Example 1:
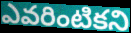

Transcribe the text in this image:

ఎవరింటికని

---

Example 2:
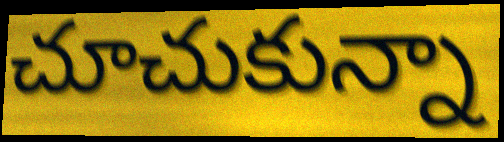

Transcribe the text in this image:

చూచుకున్నా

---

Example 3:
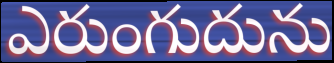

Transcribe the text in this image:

ఎరుంగుదును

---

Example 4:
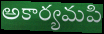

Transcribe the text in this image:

అకార్యమపి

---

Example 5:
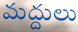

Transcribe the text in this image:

మద్దులు